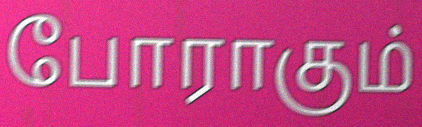
போராகும்